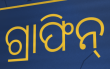
ଗ୍ରାଫିନ୍